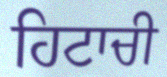
ਹਿਟਾਚੀ